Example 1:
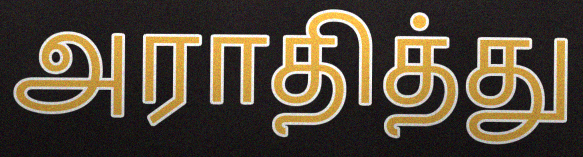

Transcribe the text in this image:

அராதித்து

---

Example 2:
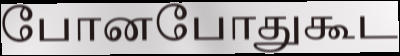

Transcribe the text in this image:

போனபோதுகூட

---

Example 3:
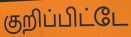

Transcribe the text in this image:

குறிப்பிட்டே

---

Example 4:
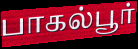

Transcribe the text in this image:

பாகல்பூர்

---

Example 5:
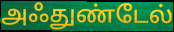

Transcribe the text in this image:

அஃதுண்டேல்